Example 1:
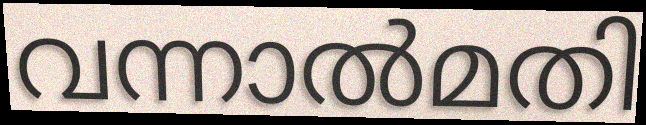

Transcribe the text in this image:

വന്നാൽമതി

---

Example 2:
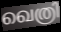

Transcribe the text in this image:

ഖെത്രി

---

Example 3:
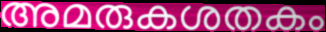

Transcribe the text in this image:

അമരുകശതകം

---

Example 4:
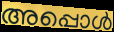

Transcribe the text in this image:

അപ്പൊൾ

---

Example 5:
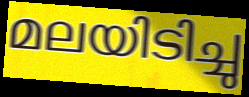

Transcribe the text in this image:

മലയിടിച്ചു